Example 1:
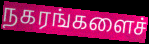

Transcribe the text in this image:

நகரங்களைச்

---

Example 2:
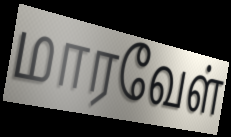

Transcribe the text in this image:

மாரவேள்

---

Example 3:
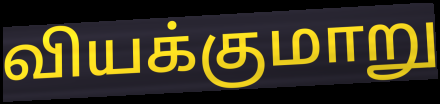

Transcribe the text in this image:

வியக்குமாறு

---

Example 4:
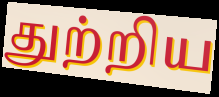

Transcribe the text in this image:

துற்றிய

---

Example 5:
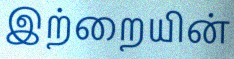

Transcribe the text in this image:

இற்றையின்